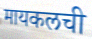
मायकलची